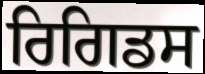
ਰਿਗਿਡਸ